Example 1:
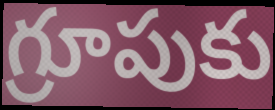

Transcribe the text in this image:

గ్రూపుకు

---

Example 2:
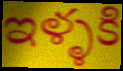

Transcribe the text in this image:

ఇళ్ళకి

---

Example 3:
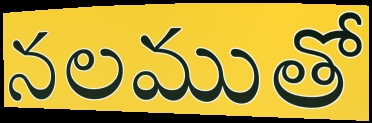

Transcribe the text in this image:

నలముతో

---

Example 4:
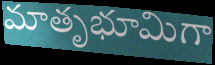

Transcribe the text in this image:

మాతృభూమిగా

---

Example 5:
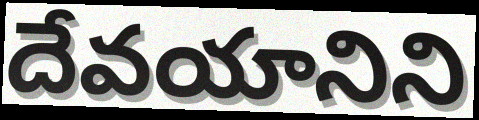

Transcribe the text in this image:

దేవయానిని